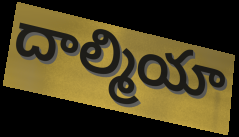
దాల్మియా